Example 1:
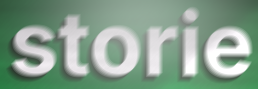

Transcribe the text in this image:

storie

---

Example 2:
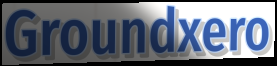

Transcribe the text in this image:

Groundxero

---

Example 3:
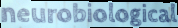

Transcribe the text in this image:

neurobiological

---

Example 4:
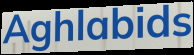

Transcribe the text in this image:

Aghlabids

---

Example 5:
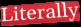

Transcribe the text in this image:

Literally